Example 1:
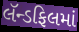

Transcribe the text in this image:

લૅન્ડફિલમાં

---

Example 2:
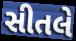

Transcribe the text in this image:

સીતલે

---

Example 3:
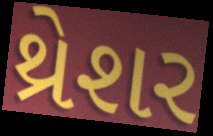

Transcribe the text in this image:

થ્રેશર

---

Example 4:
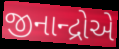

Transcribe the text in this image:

જીનાન્દ્રોએ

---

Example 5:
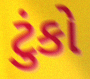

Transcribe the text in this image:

ટુંકો